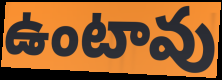
ఉంటావు